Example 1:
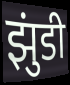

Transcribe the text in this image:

झुंडी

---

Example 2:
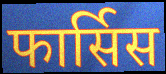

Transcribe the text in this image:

फार्सिस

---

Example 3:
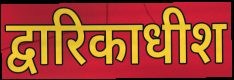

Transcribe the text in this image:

द्वारिकाधीश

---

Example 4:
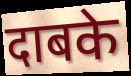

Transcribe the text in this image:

दाबके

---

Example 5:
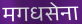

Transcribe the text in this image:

मगधसेना